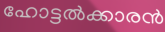
ഹോട്ടൽക്കാരൻ